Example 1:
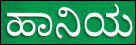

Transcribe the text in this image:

ಹಾನಿಯ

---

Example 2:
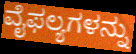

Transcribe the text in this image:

ವೈಫಲ್ಯಗಳನ್ನು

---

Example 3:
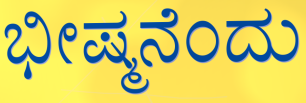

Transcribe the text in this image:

ಭೀಷ್ಮನೆಂದು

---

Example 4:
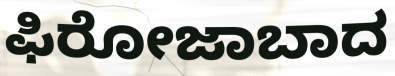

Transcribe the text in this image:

ಫಿರೋಜಾಬಾದ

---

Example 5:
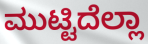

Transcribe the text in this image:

ಮುಟ್ಟಿದೆಲ್ಲಾ